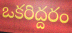
ఒకరిద్దరం